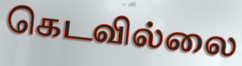
கெடவில்லை